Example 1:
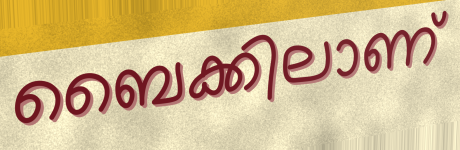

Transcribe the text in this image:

ബൈക്കിലാണ്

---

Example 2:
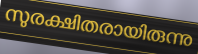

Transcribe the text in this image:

സുരക്ഷിതരായിരുന്നു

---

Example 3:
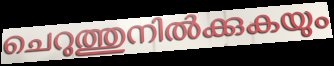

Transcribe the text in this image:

ചെറുത്തുനിൽക്കുകയും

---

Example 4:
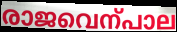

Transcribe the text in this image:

രാജവെന്പാല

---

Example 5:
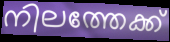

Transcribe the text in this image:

നിലത്തേക്ക്